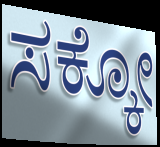
ಸಕ್ಕೋ